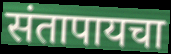
संतापायचा